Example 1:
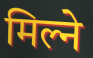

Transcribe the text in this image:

मिल्ने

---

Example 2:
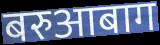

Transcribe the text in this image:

बरुआबाग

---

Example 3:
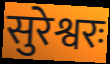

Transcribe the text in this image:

सुरेश्वरः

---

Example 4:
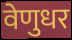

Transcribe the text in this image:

वेणुधर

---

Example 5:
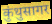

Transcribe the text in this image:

कुंथुसागर